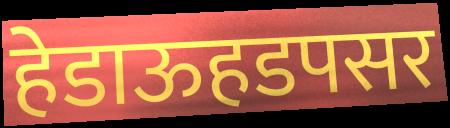
हेडाऊहडपसर